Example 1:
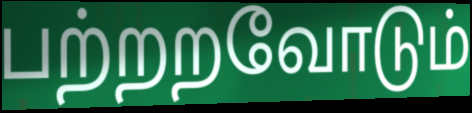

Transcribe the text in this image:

பற்றறவோடும்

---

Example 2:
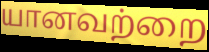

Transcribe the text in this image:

யானவற்றை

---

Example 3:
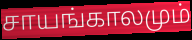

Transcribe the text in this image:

சாயங்காலமும்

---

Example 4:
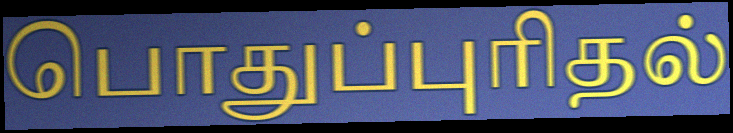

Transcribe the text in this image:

பொதுப்புரிதல்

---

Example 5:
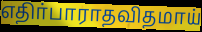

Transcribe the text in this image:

எதிர்பாராதவிதமாய்